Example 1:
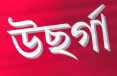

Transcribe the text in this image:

উছৰ্গা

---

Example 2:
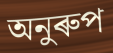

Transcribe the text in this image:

অনুৰুপ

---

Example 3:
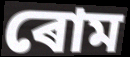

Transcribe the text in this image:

ৰোম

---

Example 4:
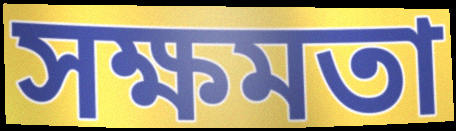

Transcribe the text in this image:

সক্ষমতা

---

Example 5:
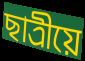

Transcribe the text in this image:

ছাত্ৰীয়ে